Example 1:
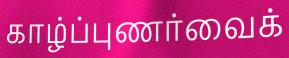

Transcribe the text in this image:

காழ்ப்புணர்வைக்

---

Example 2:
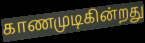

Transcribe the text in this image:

காணமுடிகின்றது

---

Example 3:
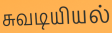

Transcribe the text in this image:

சுவடியியல்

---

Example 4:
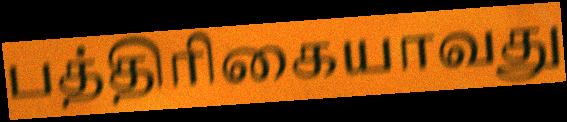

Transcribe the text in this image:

பத்திரிகையாவது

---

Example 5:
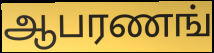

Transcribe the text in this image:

ஆபரணங்